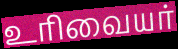
உரிவையர்